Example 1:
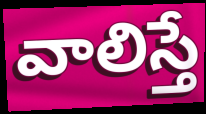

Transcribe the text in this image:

వాలిస్తే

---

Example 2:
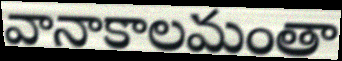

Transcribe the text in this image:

వానాకాలమంతా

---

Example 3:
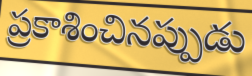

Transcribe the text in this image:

ప్రకాశించినప్పుడు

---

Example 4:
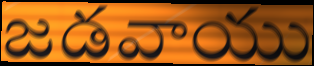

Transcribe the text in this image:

జడవాయు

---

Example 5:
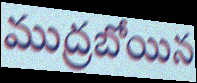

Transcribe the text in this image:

ముద్రబోయిన